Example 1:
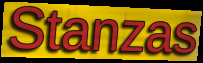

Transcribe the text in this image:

Stanzas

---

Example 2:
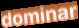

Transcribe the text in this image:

dominar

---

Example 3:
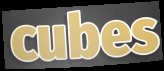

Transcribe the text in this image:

cubes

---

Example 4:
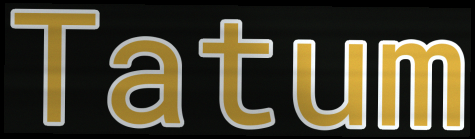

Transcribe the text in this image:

Tatum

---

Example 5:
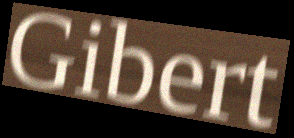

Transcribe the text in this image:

Gibert